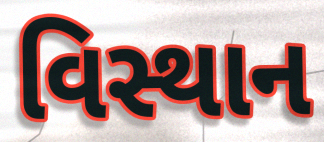
વિસ્થાન